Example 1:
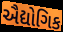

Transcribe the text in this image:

ઐદ્યોગિક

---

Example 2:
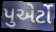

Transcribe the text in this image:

પુએર્ટો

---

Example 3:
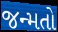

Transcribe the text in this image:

જન્મતો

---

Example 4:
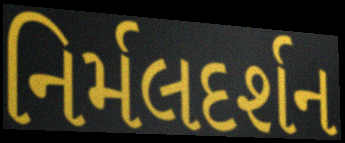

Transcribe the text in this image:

નિર્મલદર્શન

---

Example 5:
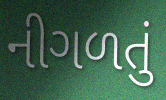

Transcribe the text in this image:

નીગળતું